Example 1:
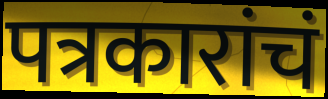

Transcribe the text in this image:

पत्रकारांचं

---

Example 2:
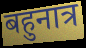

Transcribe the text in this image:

बहुनात्र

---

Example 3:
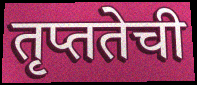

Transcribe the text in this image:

तृप्ततेची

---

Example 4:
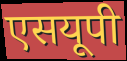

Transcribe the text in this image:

एसयूपी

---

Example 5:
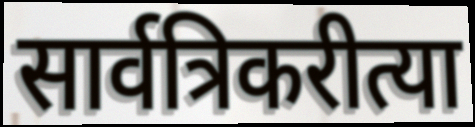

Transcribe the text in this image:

सार्वत्रिकरीत्या